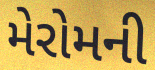
મેરોમની